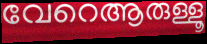
വേറെആരുള്ളൂ